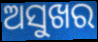
ଅସୁଖର